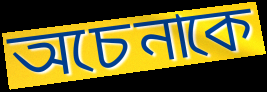
অচেনাকে